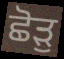
ਛੋੜੁ